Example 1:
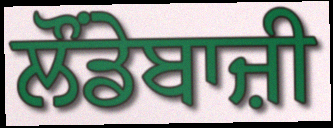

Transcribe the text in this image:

ਲੌਂਡੇਬਾਜ਼ੀ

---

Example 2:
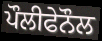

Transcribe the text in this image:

ਪੌਲੀਫੇਨੌਲ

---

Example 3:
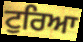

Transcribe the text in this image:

ਟੁਰਿਆ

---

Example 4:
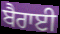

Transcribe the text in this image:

ਬੈਰਾਈ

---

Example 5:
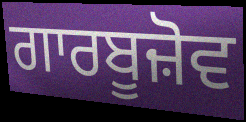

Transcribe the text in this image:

ਗਾਰਬੂਜ਼ੋਵ